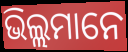
ଭିଲ୍ଲମାନେ